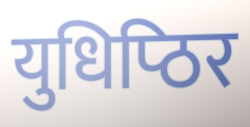
युधिप्ठिर